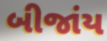
બીજાંય